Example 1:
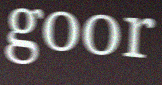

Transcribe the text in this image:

goor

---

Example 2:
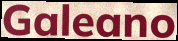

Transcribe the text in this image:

Galeano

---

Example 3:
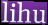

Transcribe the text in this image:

lihu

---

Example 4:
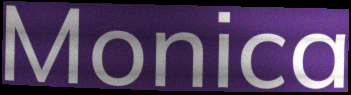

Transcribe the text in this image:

Monica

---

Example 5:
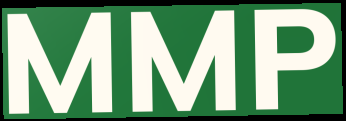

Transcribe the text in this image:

MMP